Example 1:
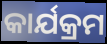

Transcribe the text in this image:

କାର୍ଯକ୍ରମ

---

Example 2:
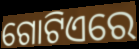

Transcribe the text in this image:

ଗୋଟିଏରେ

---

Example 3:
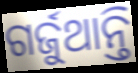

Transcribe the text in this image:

ଗର୍ଜୁଥାନ୍ତି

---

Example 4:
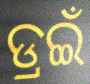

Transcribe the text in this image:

ଡ୍ରଇଁ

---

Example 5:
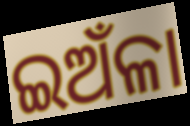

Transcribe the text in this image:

ଇଅଁଳା